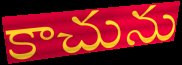
కాచును